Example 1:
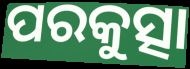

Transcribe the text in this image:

ପରକୁତ୍ସା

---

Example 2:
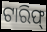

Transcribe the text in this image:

ଟାରିଫ୍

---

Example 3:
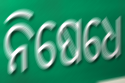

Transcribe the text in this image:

ନିଷେଧେ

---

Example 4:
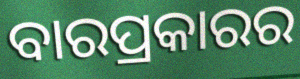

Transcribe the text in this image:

ବାରପ୍ରକାରର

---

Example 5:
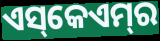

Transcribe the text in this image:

ଏସ୍‌କେଏମ୍‌ର